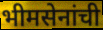
भीमसेनांची